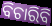
ବିଚାରିବି